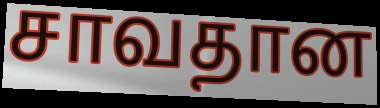
சாவதான